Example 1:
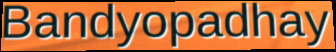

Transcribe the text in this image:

Bandyopadhay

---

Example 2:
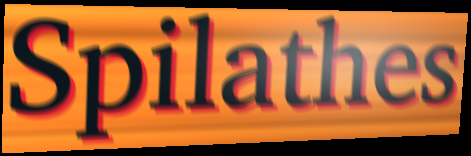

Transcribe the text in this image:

Spilathes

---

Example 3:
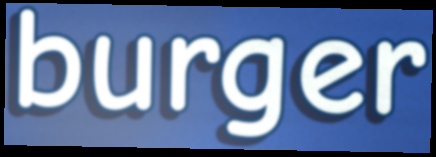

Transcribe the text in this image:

burger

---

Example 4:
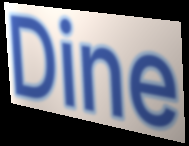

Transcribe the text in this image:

Dine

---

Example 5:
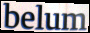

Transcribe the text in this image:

belum